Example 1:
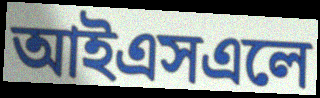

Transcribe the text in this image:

আইএসএলে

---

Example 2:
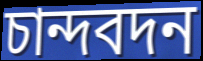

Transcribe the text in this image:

চান্দবদন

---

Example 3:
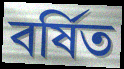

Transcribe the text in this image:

বর্ষিত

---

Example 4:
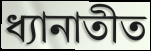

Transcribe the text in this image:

ধ্যানাতীত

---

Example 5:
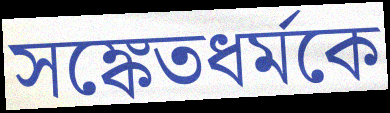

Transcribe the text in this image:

সঙ্কেতধর্মকে